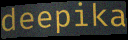
deepika